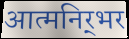
आत्मनिर्भर